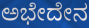
ಅಭೇದೇನ